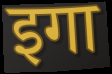
इगा